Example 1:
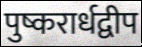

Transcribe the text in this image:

पुष्करार्धद्वीप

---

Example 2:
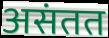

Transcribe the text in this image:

असंतत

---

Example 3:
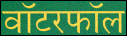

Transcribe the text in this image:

वॉटरफॉल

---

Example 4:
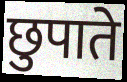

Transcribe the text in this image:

छुपाते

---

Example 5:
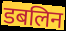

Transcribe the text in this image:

डबलिन